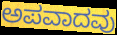
ಅಪವಾದವು